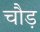
चौड़